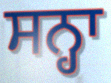
ਸਨ੍ਹਾ